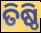
ତିଷ୍ଠି